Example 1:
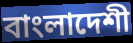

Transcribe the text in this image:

বাংলাদেশী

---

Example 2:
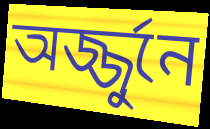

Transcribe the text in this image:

অর্জ্জুনে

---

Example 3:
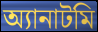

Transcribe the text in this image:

অ্যানাটমি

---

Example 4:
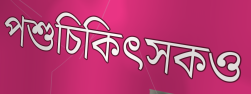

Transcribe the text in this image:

পশুচিকিৎসকও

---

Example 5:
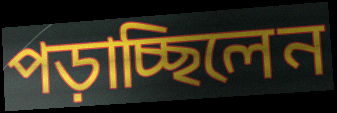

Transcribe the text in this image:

পড়াচ্ছিলেন